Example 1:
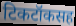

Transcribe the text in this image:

टिकटॉकसह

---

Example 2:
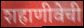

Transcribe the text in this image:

शहाणीवेची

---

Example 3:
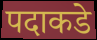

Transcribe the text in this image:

पदाकडे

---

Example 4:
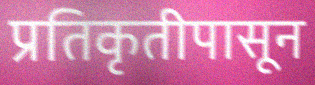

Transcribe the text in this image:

प्रतिकृतीपासून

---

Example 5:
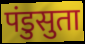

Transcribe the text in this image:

पंडुसुता